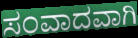
ಸಂವಾದವಾಗಿ